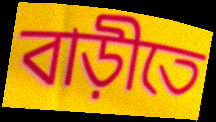
বাড়ীতে